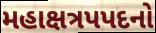
મહાક્ષત્રપપદનો